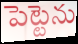
పెట్టెను